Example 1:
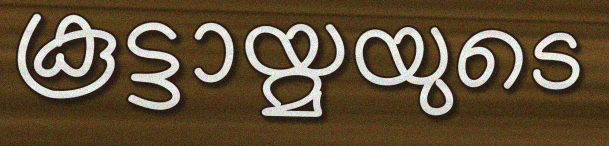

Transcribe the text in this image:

കൂട്ടായ്മയുടെ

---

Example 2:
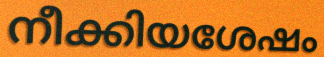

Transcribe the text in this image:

നീക്കിയശേഷം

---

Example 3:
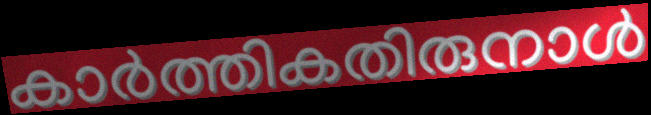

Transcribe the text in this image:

കാർത്തികതിരുനാൾ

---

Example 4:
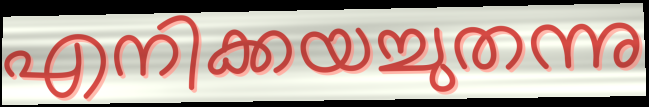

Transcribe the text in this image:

എനിക്കയച്ചുതന്നു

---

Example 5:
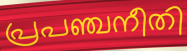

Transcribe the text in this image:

പ്രപഞ്ചനീതി